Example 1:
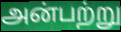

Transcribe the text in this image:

அன்பற்று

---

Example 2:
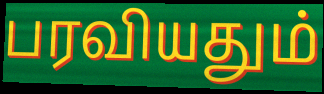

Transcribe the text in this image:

பரவியதும்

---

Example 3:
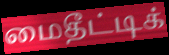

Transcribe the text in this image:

மைதீட்டிக்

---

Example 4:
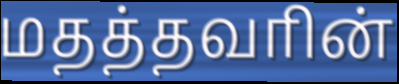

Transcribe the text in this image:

மதத்தவரின்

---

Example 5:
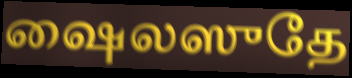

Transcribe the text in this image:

ஷைலஸுதே